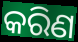
କରିଣ